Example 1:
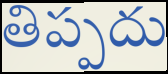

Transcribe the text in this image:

తిప్పదు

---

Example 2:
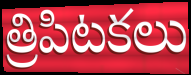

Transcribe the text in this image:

త్రిపిటకలు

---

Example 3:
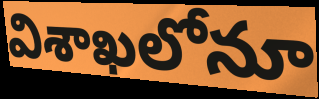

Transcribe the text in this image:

విశాఖలోనూ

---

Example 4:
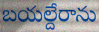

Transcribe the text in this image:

బయల్దేరాను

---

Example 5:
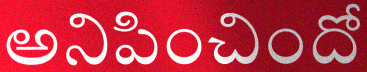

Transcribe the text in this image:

అనిపించిందో